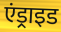
एंड्राइड